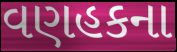
વણહકના